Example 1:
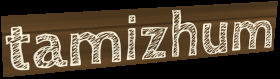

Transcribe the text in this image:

tamizhum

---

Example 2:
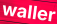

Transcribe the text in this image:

waller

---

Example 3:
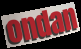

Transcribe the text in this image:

ondan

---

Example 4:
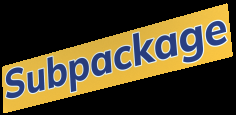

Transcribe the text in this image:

Subpackage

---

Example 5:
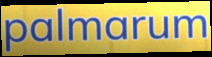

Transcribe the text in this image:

palmarum